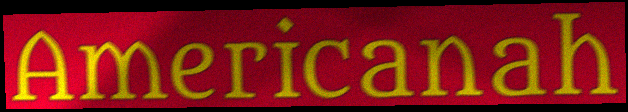
Americanah